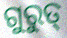
ଗୁରୁତ୍